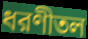
ধরণীতল